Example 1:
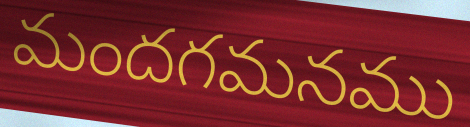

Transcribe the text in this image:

మందగమనము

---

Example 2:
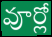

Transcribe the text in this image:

వూర్లో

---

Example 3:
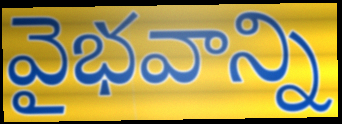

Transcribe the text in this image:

వైభవాన్ని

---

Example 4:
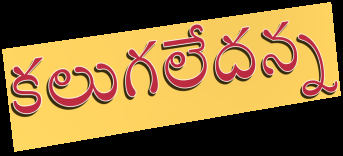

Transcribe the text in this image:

కలుగలేదన్న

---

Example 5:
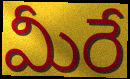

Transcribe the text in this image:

మీరే